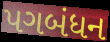
પગબંધન